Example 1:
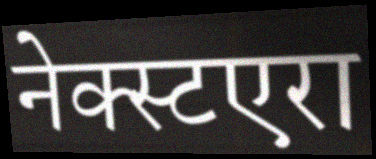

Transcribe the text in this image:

नेक्स्टएरा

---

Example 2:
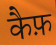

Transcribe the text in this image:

कैफ़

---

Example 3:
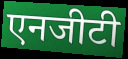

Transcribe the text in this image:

एनजीटी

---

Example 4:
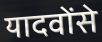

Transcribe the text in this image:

यादवोंसे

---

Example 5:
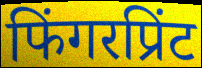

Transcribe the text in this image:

फिंगरप्रिंट